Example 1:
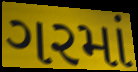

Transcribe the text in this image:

ગરમાં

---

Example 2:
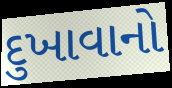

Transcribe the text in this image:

દુખાવાનો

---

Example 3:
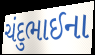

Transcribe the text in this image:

ચંદુભાઈના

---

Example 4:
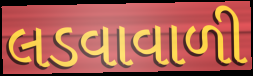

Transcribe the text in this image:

લડવાવાળી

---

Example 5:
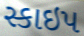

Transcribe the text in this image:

સ્કાઇપ